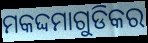
ମକଦ୍ଦମାଗୁଡିକର